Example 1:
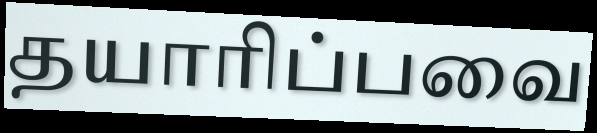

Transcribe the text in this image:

தயாரிப்பவை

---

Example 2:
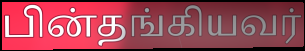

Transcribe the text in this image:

பின்தங்கியவர்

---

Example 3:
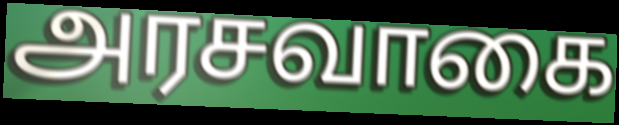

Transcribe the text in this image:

அரசவாகை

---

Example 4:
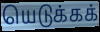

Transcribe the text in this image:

யெடுக்கக்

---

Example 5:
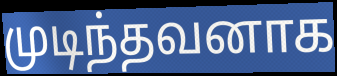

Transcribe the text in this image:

முடிந்தவனாக